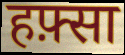
हफ़्सा